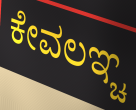
ಕೇವಲಞ್ಚ